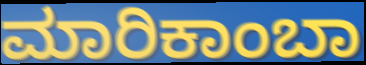
ಮಾರಿಕಾಂಬಾ